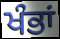
ਖੰਭਾਂ